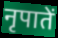
नृपातें